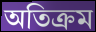
অতিক্রম